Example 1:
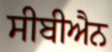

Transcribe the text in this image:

ਸੀਬੀਐਨ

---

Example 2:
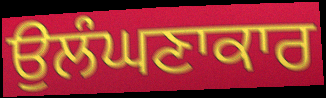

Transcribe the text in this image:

ਉਲੰਘਣਾਕਾਰ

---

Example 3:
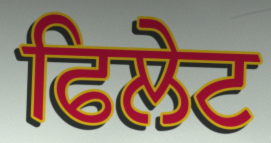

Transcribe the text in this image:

ਫਿਲੇਟ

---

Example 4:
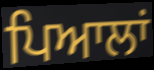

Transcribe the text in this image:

ਪਿਆਲਾਂ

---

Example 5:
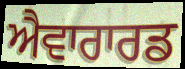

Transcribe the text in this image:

ਐਵਾਰਾਰਡ